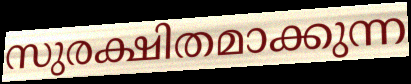
സുരക്ഷിതമാക്കുന്ന